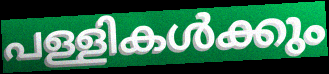
പള്ളികൾക്കും